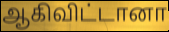
ஆகிவிட்டானா